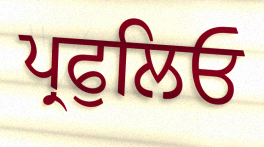
ਪ੍ਰਫੁਲਿਓ